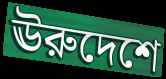
ঊরুদেশে